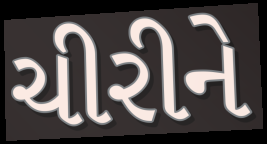
ચીરીને